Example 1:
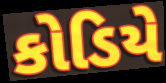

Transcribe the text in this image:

કોડિયે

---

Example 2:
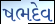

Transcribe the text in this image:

ષભદેવ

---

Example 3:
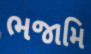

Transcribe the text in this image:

ભજામિ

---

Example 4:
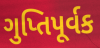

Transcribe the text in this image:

ગુપ્તિપૂર્વક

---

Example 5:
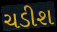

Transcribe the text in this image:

ચડીશ